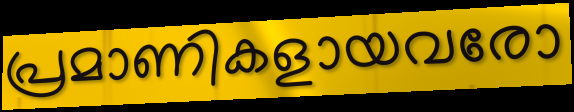
പ്രമാണികളായവരോ